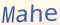
Mahe